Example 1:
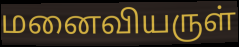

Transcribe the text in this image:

மனைவியருள்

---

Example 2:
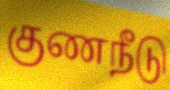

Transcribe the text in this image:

குணநீடு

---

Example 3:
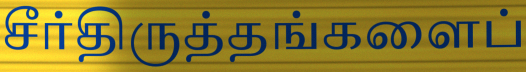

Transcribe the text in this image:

சீர்திருத்தங்களைப்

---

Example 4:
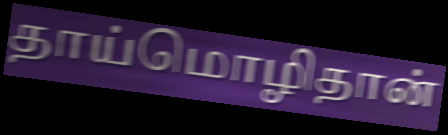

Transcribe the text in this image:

தாய்மொழிதான்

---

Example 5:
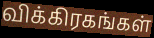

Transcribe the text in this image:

விக்கிரகங்கள்